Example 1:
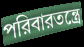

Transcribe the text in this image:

পরিবারতন্ত্রে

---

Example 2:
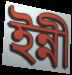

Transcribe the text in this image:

ইন্নী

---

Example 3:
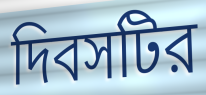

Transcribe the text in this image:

দিবসটির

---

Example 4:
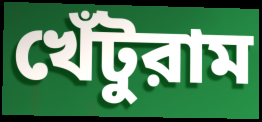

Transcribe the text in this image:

খেঁটুরাম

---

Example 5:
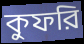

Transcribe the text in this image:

কুফরি